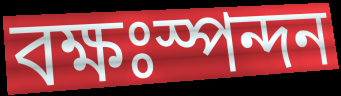
বক্ষঃস্পন্দন